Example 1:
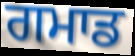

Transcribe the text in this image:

ਗਮਾਡ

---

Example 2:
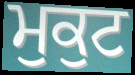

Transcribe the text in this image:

ਮੁਕੁਟ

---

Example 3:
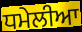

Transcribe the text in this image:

ਧਮੇਲੀਆ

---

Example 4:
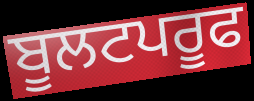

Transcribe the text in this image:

ਬੂਲਟਪਰੂਫ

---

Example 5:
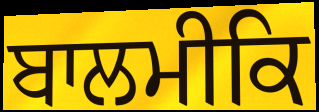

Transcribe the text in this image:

ਬਾਲਮੀਕਿ